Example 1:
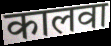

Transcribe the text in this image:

कालवा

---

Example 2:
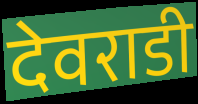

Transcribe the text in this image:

देवराडी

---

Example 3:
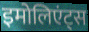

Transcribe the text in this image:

इमोलिएंट्स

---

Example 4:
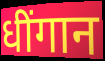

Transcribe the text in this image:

धींगान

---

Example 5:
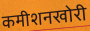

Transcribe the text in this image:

कमीशनखोरी